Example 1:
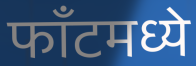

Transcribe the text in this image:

फाँटमध्ये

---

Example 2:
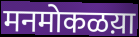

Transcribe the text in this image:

मनमोकळय़ा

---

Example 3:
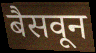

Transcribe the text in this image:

बैसवून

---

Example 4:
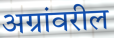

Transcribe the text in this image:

अग्रांवरील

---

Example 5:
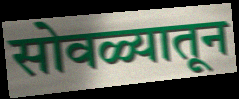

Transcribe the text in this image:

सोवळ्यातून